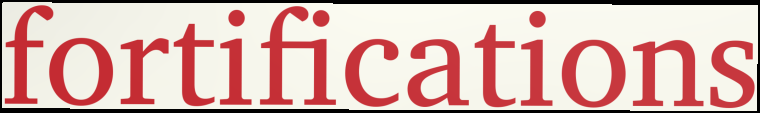
fortifications